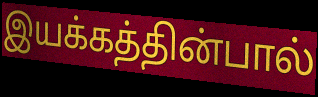
இயக்கத்தின்பால்